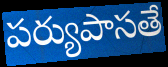
పర్యుపాసతే